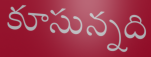
కూసున్నది